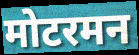
मोटरमन